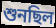
শুনছিল